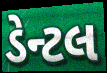
ડેન્ટલ